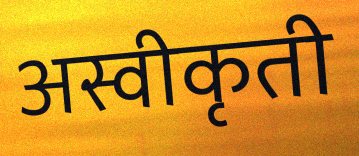
अस्वीकृती